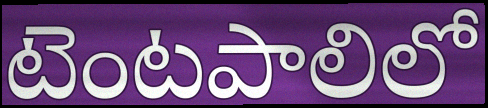
టెంటపాలిలో